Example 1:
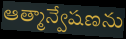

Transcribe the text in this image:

ఆత్మాన్వేషణను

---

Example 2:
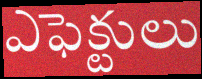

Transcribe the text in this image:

ఎఫెక్టులు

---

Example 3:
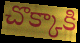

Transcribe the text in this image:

చొక్కాకి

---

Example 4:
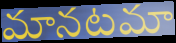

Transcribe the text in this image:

మానటమా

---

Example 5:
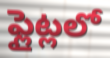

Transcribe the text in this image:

ఫ్లైట్లలో